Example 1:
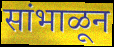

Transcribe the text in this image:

सांभाळून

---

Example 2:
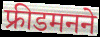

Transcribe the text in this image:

फ्रीडमनने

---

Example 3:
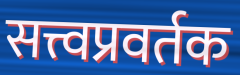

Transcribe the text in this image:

सत्त्वप्रवर्तक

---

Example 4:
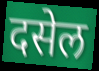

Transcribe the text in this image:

दसेल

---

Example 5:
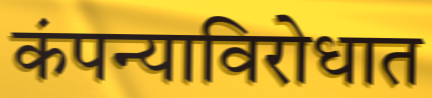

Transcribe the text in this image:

कंपन्याविरोधात